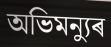
অভিমন্যুৰ